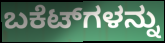
ಬಕೆಟ್‌ಗಳನ್ನು